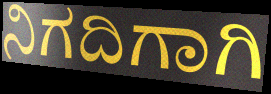
ನಿಗದಿಗಾಗಿ